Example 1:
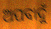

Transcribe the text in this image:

ଅପବାଦୁଁ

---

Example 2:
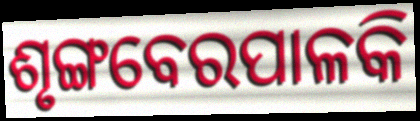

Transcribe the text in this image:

ଶୃଙ୍ଗବେରପାଳକି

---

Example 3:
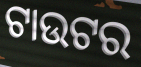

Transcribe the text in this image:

ଟାଉଟର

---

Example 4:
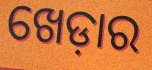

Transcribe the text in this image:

ଖେଡ଼ାର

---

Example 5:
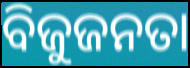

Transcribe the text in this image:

ବିଜୁଜନତା